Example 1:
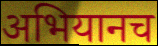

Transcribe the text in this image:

अभियानच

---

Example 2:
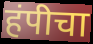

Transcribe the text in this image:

हंपीचा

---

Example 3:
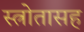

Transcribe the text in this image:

स्त्रोतासह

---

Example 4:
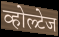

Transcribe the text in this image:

व्होल्टेज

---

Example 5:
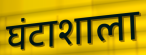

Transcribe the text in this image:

घंटाशाला